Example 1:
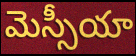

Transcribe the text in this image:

మెస్సీయా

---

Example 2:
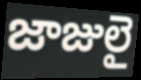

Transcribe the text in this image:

జాజులై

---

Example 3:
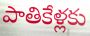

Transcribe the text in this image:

పాతికేళ్లకు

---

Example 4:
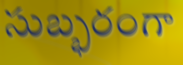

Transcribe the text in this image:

సుబ్భరంగా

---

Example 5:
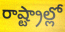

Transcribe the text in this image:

రాష్ట్రాల్లో